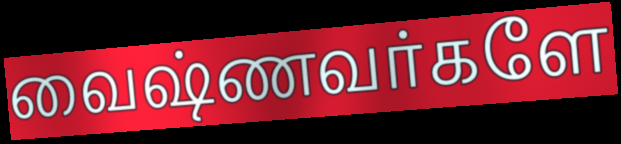
வைஷ்ணவர்களே